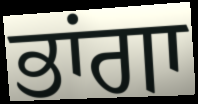
ਭਾਂਗਾ